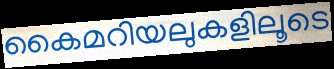
കൈമറിയലുകളിലൂടെ